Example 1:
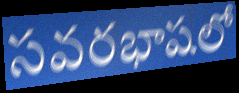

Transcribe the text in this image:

సవరభాషలో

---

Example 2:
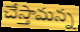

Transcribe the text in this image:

చేస్తామన్న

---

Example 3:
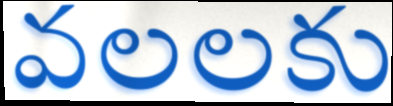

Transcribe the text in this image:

వలలకు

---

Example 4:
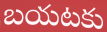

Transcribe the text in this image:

బయటకు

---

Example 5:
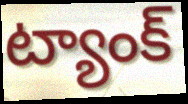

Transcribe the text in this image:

ట్యాంక్